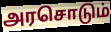
அரசொடும்